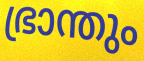
ഭ്രാന്തും